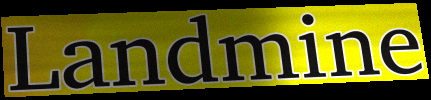
Landmine